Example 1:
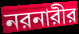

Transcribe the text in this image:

নরনারীর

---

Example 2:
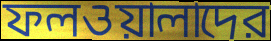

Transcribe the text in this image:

ফলওয়ালাদের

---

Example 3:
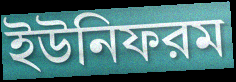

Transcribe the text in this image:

ইউনিফরম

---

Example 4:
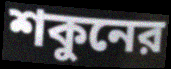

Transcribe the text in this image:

শকুনের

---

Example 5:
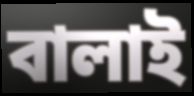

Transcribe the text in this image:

বালাই